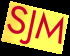
SJM